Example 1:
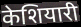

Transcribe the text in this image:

केशियारी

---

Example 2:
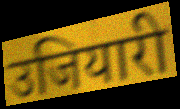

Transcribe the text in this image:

उजियारी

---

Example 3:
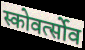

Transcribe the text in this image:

स्कोवर्त्सोव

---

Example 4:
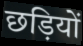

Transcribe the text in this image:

छड़ियों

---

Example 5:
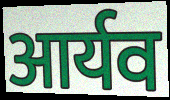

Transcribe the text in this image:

आर्यव